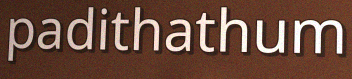
padithathum